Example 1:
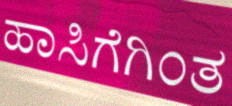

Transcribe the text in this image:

ಹಾಸಿಗೆಗಿಂತ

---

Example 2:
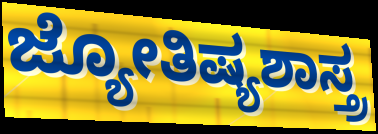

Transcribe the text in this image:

ಜ್ಯೋತಿಷ್ಯಶಾಸ್ತ್ರ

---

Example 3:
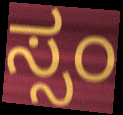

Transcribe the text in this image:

ಸ್ಸಂ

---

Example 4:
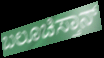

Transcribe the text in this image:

ಬಲೂಚಿಸ್ತಾನ್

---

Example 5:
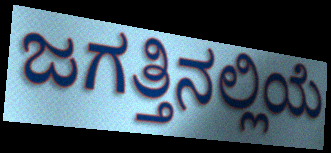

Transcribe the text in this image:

ಜಗತ್ತಿನಲ್ಲಿಯೆ